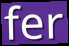
fer